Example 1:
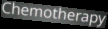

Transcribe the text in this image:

Chemotherapy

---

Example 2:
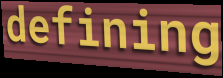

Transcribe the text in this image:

defining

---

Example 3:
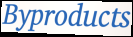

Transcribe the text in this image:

Byproducts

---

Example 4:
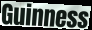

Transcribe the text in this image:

Guinness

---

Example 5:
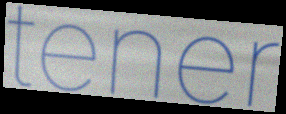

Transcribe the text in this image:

tener